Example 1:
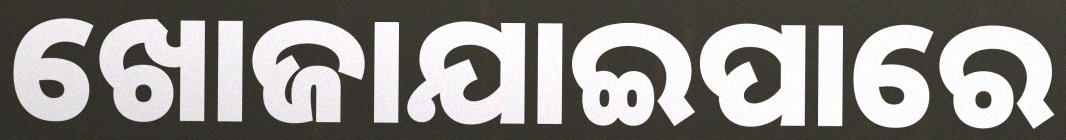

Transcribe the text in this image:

ଖୋଜାଯାଇପାରେ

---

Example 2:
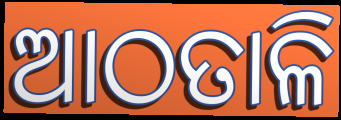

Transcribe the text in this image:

ଆଠତାଳି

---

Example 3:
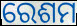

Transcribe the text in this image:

ରେଶମ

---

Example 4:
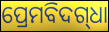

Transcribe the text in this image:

ପ୍ରେମବିଦଗ୍‍ଧା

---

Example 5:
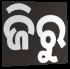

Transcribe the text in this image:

ଜିରୁ